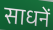
साधनें